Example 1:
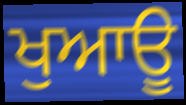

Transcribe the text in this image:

ਖੁਆਊ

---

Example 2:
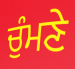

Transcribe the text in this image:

ਚੁੰਮਣੇ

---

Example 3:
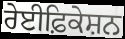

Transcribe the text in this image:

ਰੇਈਫ਼ਿਕੇਸ਼ਨ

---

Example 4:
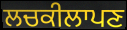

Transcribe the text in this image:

ਲਚਕੀਲਾਪਣ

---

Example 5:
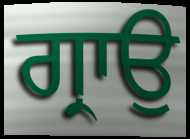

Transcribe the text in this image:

ਗ੍ਰਾਉ